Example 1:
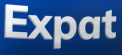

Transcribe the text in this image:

Expat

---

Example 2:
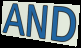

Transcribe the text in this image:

AND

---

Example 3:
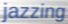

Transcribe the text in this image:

jazzing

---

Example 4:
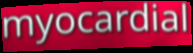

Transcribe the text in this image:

myocardial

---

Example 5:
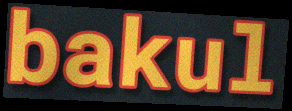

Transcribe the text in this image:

bakul